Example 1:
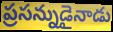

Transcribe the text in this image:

ప్రసన్నుడైనాడు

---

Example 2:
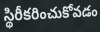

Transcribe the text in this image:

స్థిరీకరించుకోవడం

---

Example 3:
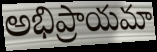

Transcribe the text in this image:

అభిప్రాయమా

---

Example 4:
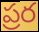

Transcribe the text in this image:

ప్రర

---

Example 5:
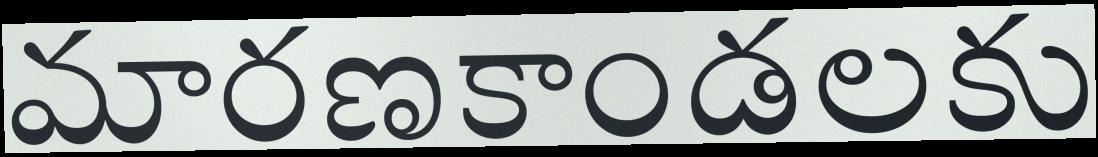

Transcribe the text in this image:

మారణకాండలకు